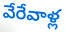
వేరేవాళ్ల